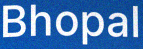
Bhopal